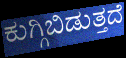
ಕುಗ್ಗಿಬಿಡುತ್ತದೆ